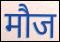
मौज